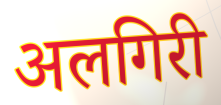
अलगिरी